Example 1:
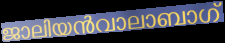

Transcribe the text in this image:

ജാലിയൻവാലാബാഗ്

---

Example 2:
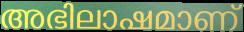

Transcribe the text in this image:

അഭിലാഷമാണ്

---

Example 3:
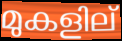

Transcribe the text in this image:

മുകളില്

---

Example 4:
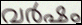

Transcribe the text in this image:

വർഷം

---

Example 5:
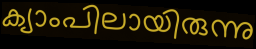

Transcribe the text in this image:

ക്യാംപിലായിരുന്നു